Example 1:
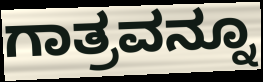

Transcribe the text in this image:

ಗಾತ್ರವನ್ನೂ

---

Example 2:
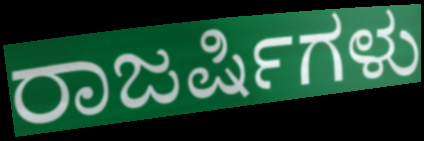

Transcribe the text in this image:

ರಾಜರ್ಷಿಗಳು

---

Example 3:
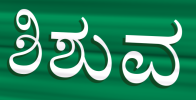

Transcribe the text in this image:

ಶಿಶುವ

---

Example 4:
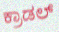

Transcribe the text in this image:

ಕ್ರಾಡಲ್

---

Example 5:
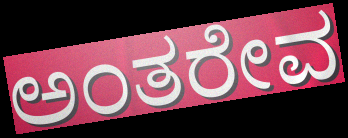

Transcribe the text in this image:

ಅಂತರೇವ